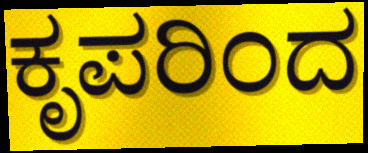
ಕೃಪರಿಂದ